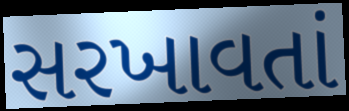
સરખાવતાં